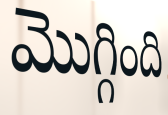
మొగ్గింది